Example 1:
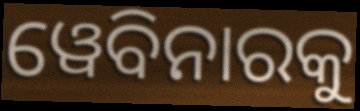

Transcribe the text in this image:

ୱେବିନାରକୁ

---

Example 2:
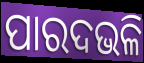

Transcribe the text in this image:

ପାରଦଭଳି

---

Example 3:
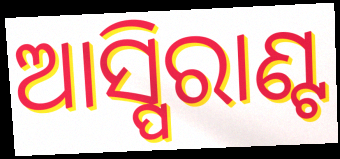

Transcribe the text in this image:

ଆସ୍ପିରାଣ୍ଟ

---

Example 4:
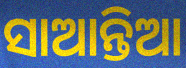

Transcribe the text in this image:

ସାଆନ୍ତିଆ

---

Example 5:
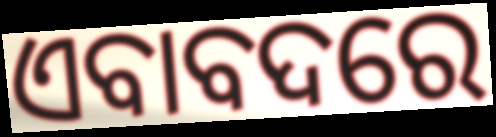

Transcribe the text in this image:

ଏବାବଦରେ